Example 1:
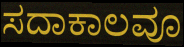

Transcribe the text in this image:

ಸದಾಕಾಲವೂ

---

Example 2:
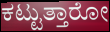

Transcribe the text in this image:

ಕಟ್ಟುತ್ತಾರೋ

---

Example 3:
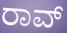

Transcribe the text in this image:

ರಾವ್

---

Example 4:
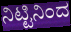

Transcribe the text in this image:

ನಿಟ್ಟಿನಿಂದ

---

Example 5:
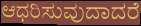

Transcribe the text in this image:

ಆಧರಿಸುವುದಾದರೆ